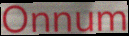
Onnum